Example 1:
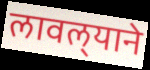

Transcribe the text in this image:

लावल्याने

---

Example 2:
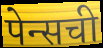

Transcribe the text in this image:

पेन्सची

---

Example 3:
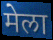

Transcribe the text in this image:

मेला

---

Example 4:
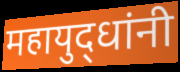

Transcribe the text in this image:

महायुद्धांनी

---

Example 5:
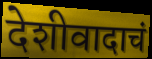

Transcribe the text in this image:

देशीवादाचं